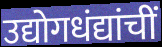
उद्योगधंद्यांचीं